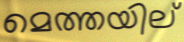
മെത്തയില്